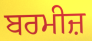
ਬਰਮੀਜ਼